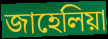
জাহেলিয়া